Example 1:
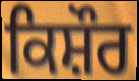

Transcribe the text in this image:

ਕਿਸ਼ੌਰ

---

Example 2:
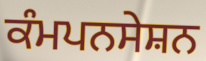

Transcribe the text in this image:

ਕੰਮਪਨਸੇਸ਼ਨ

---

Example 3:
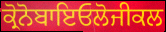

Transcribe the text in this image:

ਕ੍ਰੋਨੋਬਾਇਓਲੋਜੀਕਲ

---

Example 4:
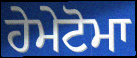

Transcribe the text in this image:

ਹੇਮੇਟੋਮਾ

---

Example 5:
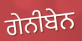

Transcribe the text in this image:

ਗੇਨੀਬੇਨ